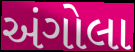
અંગોલા